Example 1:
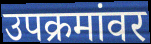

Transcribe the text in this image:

उपक्रमांवर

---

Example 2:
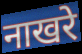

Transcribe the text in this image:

नाखरे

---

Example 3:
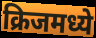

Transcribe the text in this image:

क्रिजमध्ये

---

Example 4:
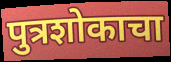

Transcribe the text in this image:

पुत्रशोकाचा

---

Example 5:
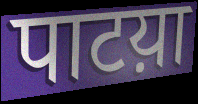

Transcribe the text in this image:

पाटय़ा